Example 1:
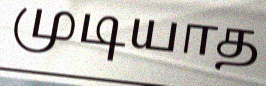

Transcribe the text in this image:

முடியாத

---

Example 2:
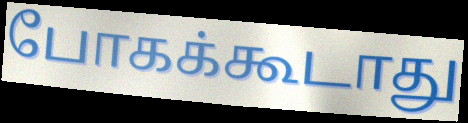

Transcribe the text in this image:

போகக்கூடாது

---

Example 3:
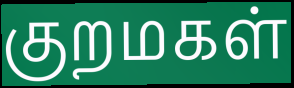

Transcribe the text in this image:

குறமகள்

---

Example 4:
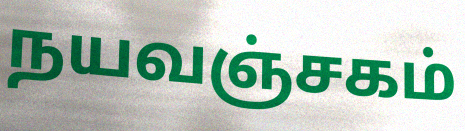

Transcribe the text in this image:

நயவஞ்சகம்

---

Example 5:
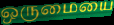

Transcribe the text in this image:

ஒருமையை